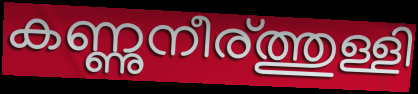
കണ്ണുനീര്ത്തുള്ളി